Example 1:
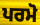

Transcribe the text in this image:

ਪਰਮੋ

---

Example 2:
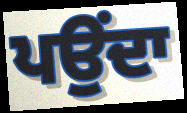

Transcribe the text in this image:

ਪਉਂਦਾ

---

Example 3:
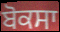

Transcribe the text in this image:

ਬੋਕਸਾ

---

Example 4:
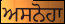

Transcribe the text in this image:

ਅਸਨੋਹਾ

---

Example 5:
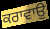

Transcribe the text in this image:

ਕਰਾਵਾਉ